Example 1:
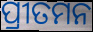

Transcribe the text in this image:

ପ୍ରୀତମନ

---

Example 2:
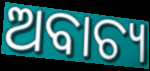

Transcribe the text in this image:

ଅବାଚ୍ୟ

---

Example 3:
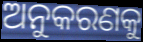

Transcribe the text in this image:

ଅନୁକରଣକୁ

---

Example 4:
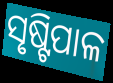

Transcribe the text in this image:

ସୃଷ୍ଟିପାଳ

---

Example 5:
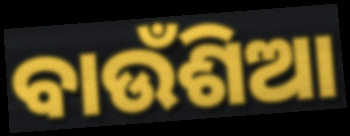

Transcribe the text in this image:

ବାଉଁଶିଆ